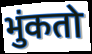
भुंकतो